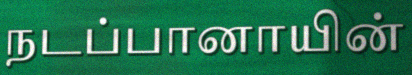
நடப்பானாயின்